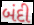
બંદી